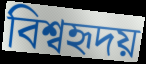
বিশ্বহৃদয়